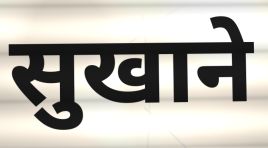
सुखाने